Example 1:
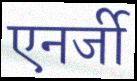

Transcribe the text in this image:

एनर्जी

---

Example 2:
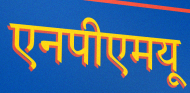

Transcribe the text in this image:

एनपीएमयू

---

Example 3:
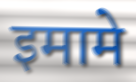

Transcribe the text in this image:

इमामे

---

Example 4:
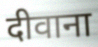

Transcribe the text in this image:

दीवाना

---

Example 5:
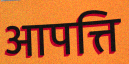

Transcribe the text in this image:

आपत्ति